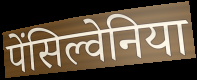
पेंसिल्वेनिया